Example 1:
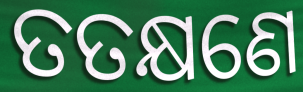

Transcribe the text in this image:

ତତକ୍ଷଣେ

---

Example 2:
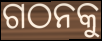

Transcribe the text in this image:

ଗଠନକୁ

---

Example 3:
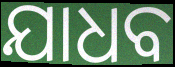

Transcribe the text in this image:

ଯାଧବ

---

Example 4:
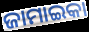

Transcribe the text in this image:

ଜାମାଇକା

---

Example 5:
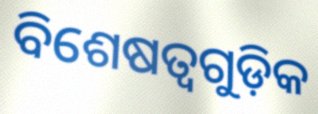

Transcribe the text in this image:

ବିଶେଷତ୍ୱଗୁଡ଼ିକ